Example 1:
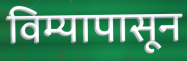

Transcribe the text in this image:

विम्यापासून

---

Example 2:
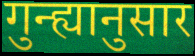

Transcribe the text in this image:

गुन्ह्यानुसार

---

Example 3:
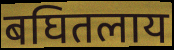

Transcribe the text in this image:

बघितलाय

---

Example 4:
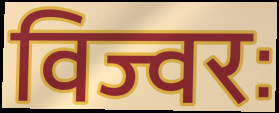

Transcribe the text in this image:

विज्वरः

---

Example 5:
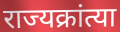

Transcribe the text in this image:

राज्यक्रांत्या